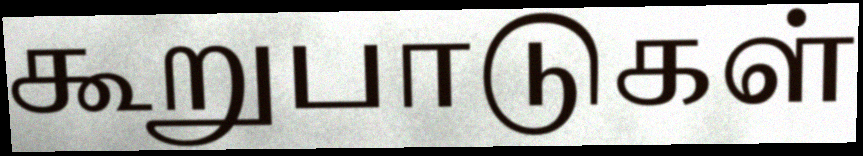
கூறுபாடுகள்